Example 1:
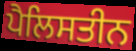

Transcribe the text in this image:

ਪੈਲਿਸਤੀਨ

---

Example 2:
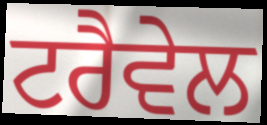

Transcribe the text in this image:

ਟਰੈਵੇਲ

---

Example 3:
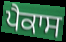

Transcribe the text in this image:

ਪੈਕਾਸ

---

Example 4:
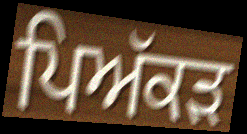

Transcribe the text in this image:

ਪਿਅੱਕੜ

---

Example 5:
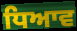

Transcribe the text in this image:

ਧਿਆਵ